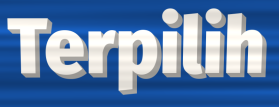
Terpilih